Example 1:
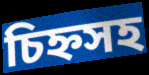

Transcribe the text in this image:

চিহ্নসহ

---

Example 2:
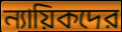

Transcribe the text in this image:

ন্যায়িকদের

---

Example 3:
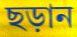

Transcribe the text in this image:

ছড়ান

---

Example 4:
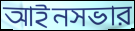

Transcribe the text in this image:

আইনসভার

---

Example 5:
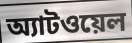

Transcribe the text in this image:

অ্যাটওয়েল